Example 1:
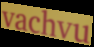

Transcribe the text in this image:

vachvu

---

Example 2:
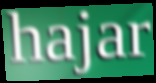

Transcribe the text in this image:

hajar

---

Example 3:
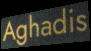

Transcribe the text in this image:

Aghadis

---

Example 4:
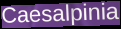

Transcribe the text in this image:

Caesalpinia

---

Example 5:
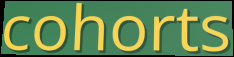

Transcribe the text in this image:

cohorts